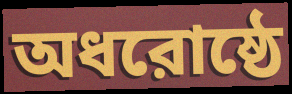
অধরোষ্ঠে